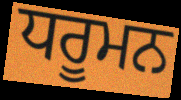
ਧਰੂਮਨ